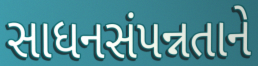
સાધનસંપન્નતાને